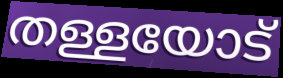
തള്ളയോട്